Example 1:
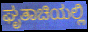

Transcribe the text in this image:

ಘೃತಾಚಿಯಲ್ಲಿ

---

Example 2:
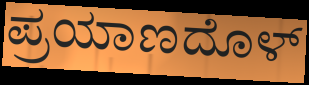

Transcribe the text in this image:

ಪ್ರಯಾಣದೊಳ್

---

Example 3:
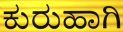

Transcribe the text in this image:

ಕುರುಹಾಗಿ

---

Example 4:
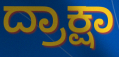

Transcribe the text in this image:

ದ್ರಾಕ್ಷಾ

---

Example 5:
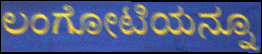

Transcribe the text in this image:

ಲಂಗೋಟಿಯನ್ನೂ